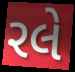
રલે